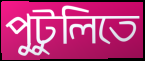
পুটুলিতে